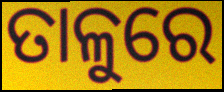
ତାଳୁରେ